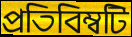
প্রতিবিম্বটি